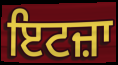
ਇਟਜ਼ਾ